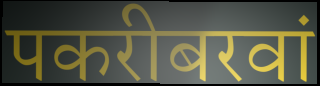
पकरीबरवां